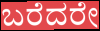
ಬರೆದರೇ